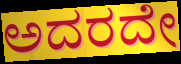
ಅದರದೇ